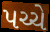
પચ્ચે